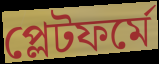
প্লেটফৰ্মে